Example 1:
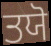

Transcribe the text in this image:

ਤਯੋ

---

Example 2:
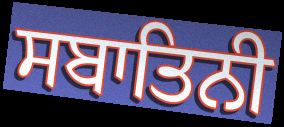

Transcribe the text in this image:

ਸਬਾਤਿਨੀ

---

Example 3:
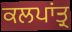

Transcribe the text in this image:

ਕਲਪਾਂਤ੍ਰ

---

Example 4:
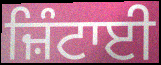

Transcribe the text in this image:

ਜ਼ਿੰਟਾਈ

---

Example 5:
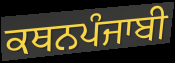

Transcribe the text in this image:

ਕਥਨਪੰਜਾਬੀ